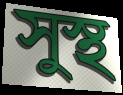
সুস্থ